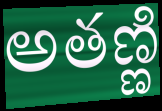
అతణ్ణి